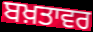
ਬਖ਼ਤਾਵਰ